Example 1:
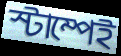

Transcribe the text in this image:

স্টাম্পেই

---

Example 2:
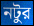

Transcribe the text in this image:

নটুর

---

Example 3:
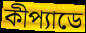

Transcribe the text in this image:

কীপ্যাডে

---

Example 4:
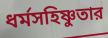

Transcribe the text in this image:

ধর্মসহিষ্ণুতার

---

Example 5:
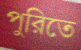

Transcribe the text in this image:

পুরিতে